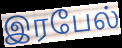
இரபேல்